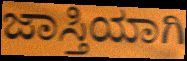
ಜಾಸ್ತಿಯಾಗಿ